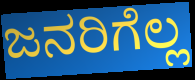
ಜನರಿಗೆಲ್ಲ